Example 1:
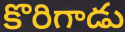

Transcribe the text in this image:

కొరిగాడు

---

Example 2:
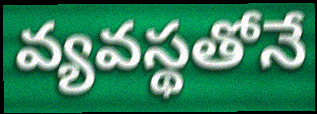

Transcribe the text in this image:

వ్యవస్థతోనే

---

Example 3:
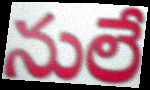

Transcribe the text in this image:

నులే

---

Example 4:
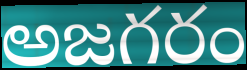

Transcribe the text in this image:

అజగరం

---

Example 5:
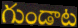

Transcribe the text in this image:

గుండాట